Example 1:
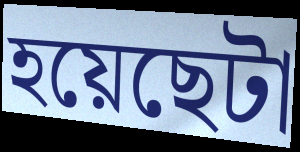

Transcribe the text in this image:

হয়েছেটা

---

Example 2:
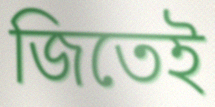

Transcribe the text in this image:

জিতেই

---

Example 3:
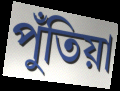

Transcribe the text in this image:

পুঁতিয়া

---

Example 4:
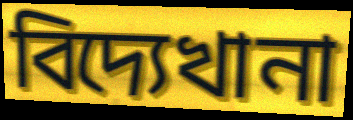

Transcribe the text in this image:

বিদ্যেখানা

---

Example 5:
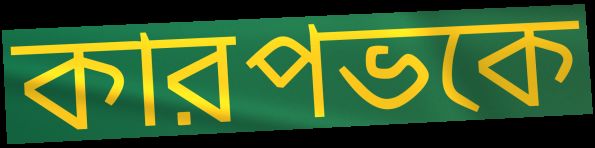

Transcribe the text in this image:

কারপভকে